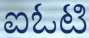
ಐಓಟಿ